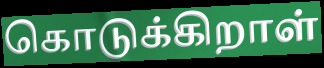
கொடுக்கிறாள்